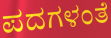
ಪದಗಳಂತೆ